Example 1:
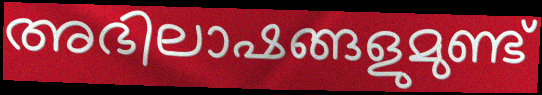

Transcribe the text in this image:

അഭിലാഷങ്ങളുമുണ്ട്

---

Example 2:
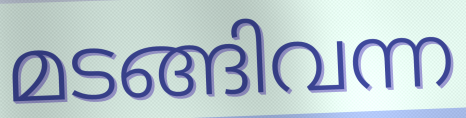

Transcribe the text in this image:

മടങ്ങിവന്ന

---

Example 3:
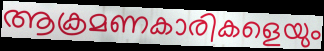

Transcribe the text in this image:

ആക്രമണകാരികളെയും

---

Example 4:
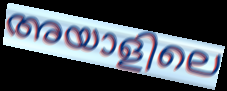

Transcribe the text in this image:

അയാളിലെ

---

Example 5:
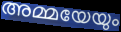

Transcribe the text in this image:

അമ്മയേയും